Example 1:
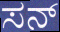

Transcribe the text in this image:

ಸನ್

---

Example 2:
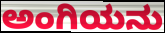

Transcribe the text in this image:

ಅಂಗಿಯನು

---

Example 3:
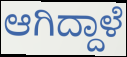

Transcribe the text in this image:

ಆಗಿದ್ದಾಳೆ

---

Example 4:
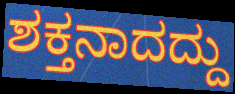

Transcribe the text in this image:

ಶಕ್ತನಾದದ್ದು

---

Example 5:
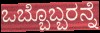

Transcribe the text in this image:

ಒಬ್ಬೊಬ್ಬರನ್ನೆ